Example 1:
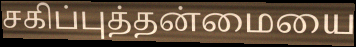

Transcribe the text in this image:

சகிப்புத்தன்மையை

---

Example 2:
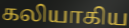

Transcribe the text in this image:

கலியாகிய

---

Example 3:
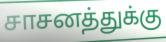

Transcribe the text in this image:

சாசனத்துக்கு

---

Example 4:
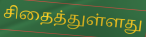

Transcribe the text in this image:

சிதைத்துள்ளது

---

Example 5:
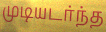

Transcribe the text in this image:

முடியடர்ந்த